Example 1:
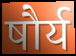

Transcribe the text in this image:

षौर्य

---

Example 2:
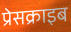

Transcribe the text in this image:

प्रेसक्राइब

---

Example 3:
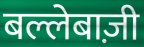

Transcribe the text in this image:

बल्‍लेबाज़ी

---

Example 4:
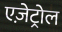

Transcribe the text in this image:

एज़ेट्रोल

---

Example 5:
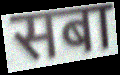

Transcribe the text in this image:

सबा